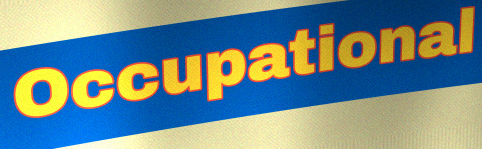
Occupational